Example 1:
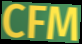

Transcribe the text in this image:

CFM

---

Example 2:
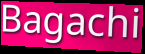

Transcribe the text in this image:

Bagachi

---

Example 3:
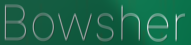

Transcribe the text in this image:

Bowsher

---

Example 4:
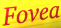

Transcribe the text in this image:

Fovea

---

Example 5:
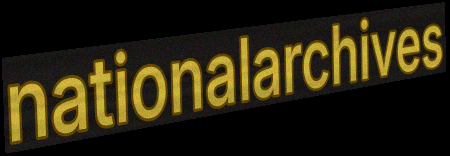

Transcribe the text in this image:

nationalarchives